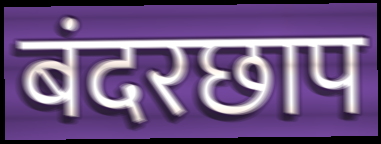
बंदरछाप